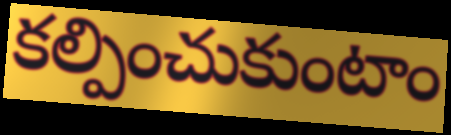
కల్పించుకుంటాం